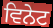
ਵਿਨੇਟ